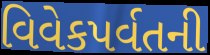
વિવેકપર્વતની